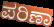
ಪರಿಣಾ